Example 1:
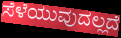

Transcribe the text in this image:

ಸೆಳೆಯುವುದಲ್ಲದೆ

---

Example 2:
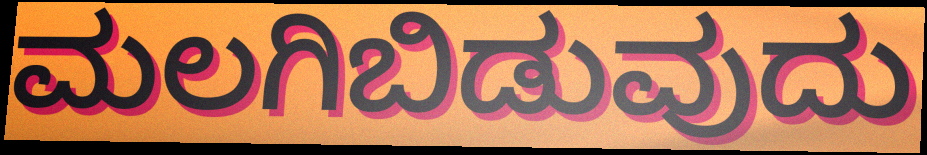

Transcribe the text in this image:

ಮಲಗಿಬಿಡುವುದು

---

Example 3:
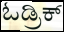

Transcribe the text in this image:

ಓಡ್ರಿಕ್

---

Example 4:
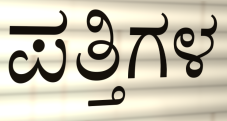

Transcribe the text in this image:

ಪತ್ತಿಗಳ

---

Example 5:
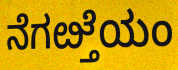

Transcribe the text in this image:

ನೆಗೞ್ತೆಯಂ